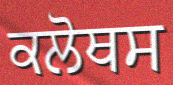
ਕਲੋਥਸ